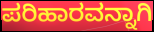
ಪರಿಹಾರವನ್ನಾಗಿ